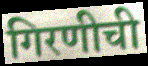
गिरणीची